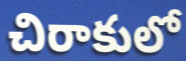
చిరాకులో